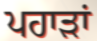
ਪਹਾੜਾਂ